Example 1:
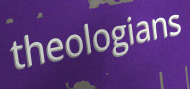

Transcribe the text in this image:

theologians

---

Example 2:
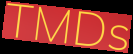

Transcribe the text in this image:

TMDs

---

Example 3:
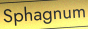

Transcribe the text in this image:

Sphagnum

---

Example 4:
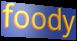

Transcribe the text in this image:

foody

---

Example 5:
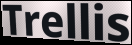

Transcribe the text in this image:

Trellis